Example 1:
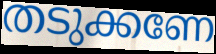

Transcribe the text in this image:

തടുക്കണേ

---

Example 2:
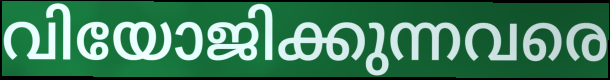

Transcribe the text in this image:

വിയോജിക്കുന്നവരെ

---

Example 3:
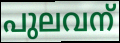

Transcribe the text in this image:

പുലവന്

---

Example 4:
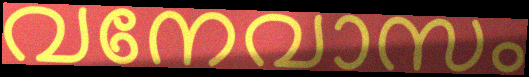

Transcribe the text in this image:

വനേവാസം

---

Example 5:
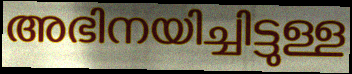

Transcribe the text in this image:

അഭിനയിച്ചിട്ടുള്ള